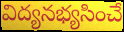
విద్యనభ్యసించే